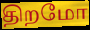
திறமோ